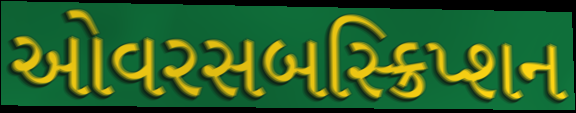
ઓવરસબસ્ક્રિપ્શન